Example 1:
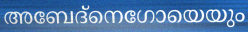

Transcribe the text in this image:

അബേദ്നെഗോയെയും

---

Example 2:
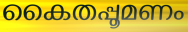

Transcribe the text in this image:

കൈതപ്പൂമണം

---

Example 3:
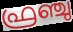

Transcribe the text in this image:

ഫ്രഞ്ചു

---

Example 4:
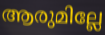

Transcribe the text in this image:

ആരുമില്ലേ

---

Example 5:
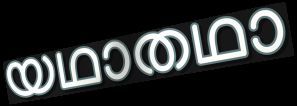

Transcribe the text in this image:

യഥാതഥാ